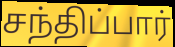
சந்திப்பார்